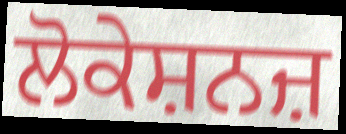
ਲੋਕੇਸ਼ਨਜ਼